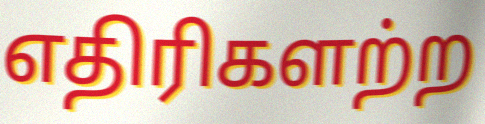
எதிரிகளற்ற